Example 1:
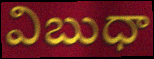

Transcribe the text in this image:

విబుధా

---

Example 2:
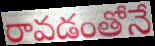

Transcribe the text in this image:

రావడంతోనే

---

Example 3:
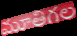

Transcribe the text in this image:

మూతిగల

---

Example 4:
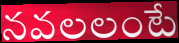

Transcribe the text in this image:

నవలలంటే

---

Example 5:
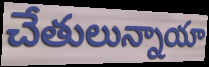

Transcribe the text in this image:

చేతులున్నాయా